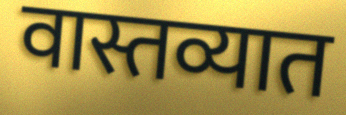
वास्तव्यात